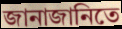
জানাজানিতে